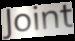
Joint